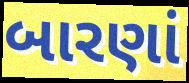
બારણાં